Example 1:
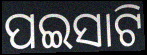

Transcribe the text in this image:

ପଇସାଟି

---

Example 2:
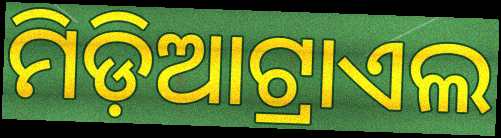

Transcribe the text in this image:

ମିଡ଼ିଆଟ୍ରାଏଲ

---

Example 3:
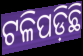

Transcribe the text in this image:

ଟଳିପଡ଼ିଛି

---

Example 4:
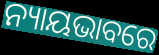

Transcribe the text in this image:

ନ୍ୟାୟଭାବରେ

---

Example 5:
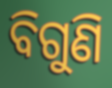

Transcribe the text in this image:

ବିଗୁଣି